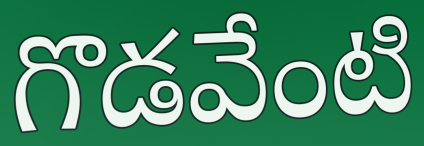
గొడవేంటి